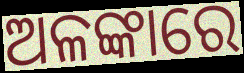
ଅଳଙ୍କାରେ